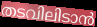
തടവിലിടാൻ